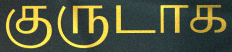
குருடாக